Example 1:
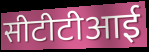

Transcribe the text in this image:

सीटीटीआई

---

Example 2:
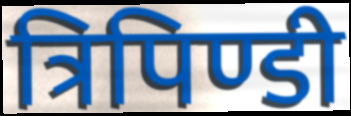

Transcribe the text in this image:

त्रिपिण्डी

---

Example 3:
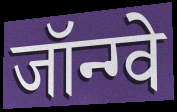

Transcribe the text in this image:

जॉन्ग्वे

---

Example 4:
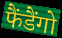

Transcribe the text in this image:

फैंडैंगो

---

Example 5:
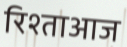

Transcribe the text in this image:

रिश्ताआज